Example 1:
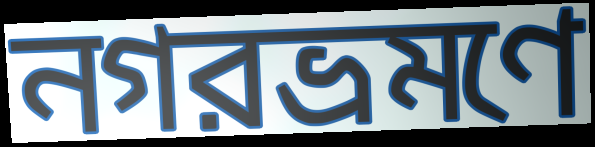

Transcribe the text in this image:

নগরভ্রমণে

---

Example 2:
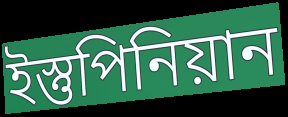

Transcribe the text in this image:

ইস্তুপিনিয়ান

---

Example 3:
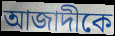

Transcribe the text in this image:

আজাদীকে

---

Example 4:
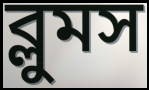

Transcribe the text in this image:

ব্লুমস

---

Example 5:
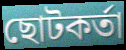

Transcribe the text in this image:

ছোটকর্তা